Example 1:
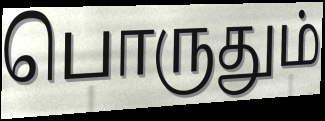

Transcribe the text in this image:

பொருதும்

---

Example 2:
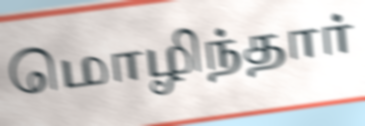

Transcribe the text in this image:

மொழிந்தார்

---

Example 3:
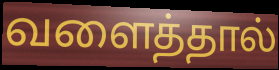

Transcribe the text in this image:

வளைத்தால்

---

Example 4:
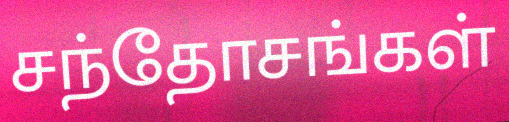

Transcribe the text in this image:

சந்தோசங்கள்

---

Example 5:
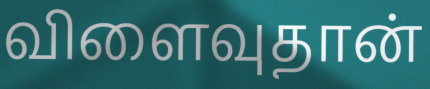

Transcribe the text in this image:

விளைவுதான்